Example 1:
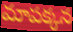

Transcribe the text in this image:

మాపక్కన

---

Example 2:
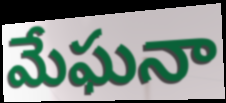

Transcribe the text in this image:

మేఘనా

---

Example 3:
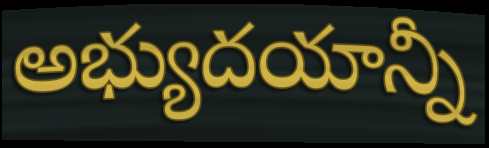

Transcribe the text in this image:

అభ్యుదయాన్నీ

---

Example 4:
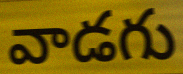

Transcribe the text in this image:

వాడగు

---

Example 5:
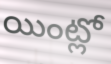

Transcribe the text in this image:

యింట్లో